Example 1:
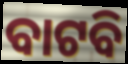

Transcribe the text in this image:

ବାଟବି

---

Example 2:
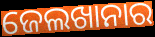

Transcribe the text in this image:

ଜେଲଖାନାର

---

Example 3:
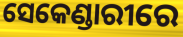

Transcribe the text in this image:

ସେକେଣ୍ଡାରୀରେ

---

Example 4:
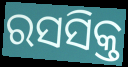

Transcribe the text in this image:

ରସସିକ୍ତ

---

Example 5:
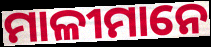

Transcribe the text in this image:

ମାଳୀମାନେ